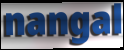
nangal